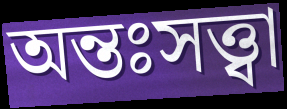
অন্তঃসত্ত্বা